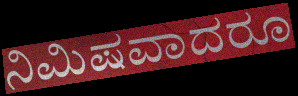
ನಿಮಿಷವಾದರೂ